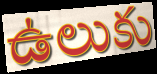
ఉలుకు